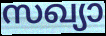
സഖ്യാ